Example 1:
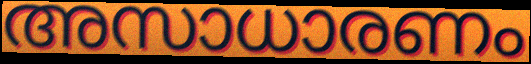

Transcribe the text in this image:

അസാധാരണം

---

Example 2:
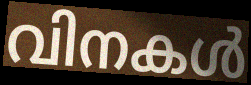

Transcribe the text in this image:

വിനകൾ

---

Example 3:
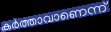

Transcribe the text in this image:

കർത്താവാണെന്ന്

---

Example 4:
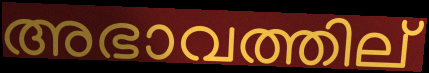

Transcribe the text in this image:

അഭാവത്തില്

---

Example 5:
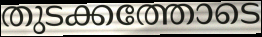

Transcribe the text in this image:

തുടക്കത്തോടെ